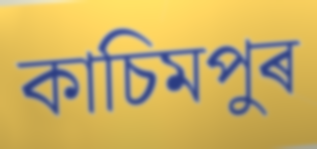
কাচিমপুৰ